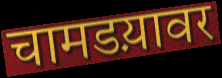
चामडय़ावर